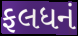
ફલધનં